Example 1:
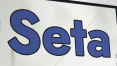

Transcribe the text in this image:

Seta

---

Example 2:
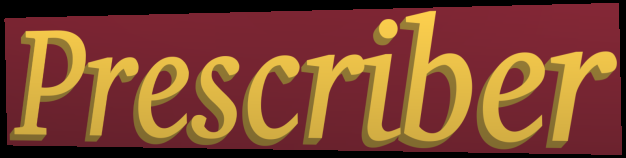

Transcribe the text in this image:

Prescriber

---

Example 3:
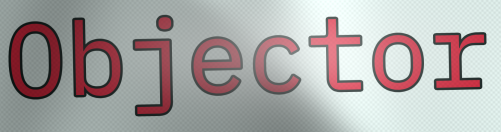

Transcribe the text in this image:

Objector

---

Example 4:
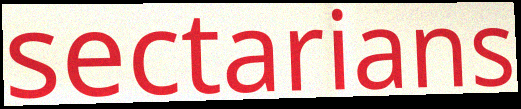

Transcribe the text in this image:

sectarians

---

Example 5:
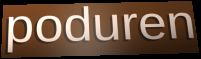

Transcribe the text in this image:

poduren